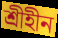
শ্রীহীন